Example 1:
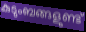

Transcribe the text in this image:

കുടുംബങ്ങളുണ്ട്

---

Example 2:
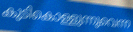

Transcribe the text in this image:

കുടികൊള്ളുന്നുവെന്ന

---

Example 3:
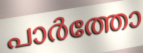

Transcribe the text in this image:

പാർത്തോ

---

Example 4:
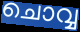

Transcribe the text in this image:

ചൊവ്വ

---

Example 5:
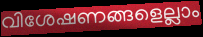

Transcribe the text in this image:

വിശേഷണങ്ങളെല്ലാം